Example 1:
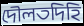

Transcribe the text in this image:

দৌলতদিহি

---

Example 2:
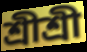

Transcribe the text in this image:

শ্রীশ্রী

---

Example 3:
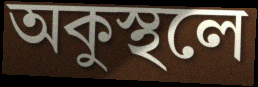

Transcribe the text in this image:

অকুস্থলে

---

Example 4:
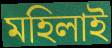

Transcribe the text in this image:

মহিলাই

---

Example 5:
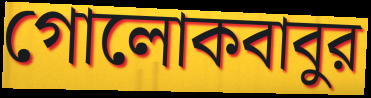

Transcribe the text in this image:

গোলোকবাবুর